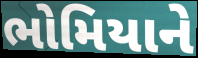
ભોમિયાને